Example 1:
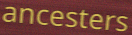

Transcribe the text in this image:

ancesters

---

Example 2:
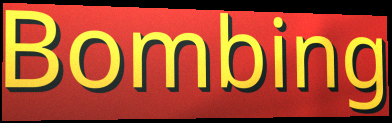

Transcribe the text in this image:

Bombing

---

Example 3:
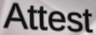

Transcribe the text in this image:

Attest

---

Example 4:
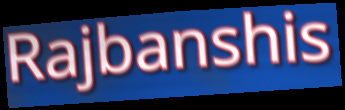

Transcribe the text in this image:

Rajbanshis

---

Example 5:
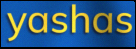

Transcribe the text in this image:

yashas